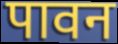
पावन